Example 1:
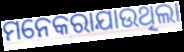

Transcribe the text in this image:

ମନେକରାଯାଉଥିଲା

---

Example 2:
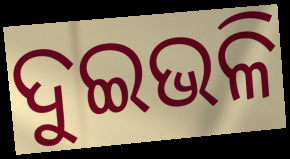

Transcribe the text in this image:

ଦୁଇଭଳି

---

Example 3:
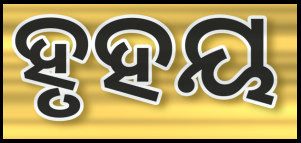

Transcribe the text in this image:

ହୃହୟ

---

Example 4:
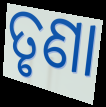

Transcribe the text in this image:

ତୃଣା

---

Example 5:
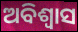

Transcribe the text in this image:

ଅବିଶ୍ବାସ